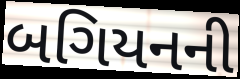
બગિયનની